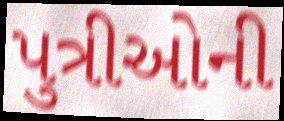
પુત્રીઓની